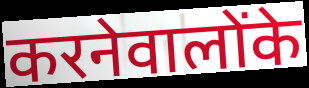
करनेवालोंके